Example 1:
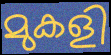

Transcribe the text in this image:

മുകളി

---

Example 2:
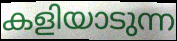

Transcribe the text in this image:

കളിയാടുന്ന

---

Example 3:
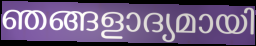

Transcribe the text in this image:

ഞങ്ങളാദ്യമായി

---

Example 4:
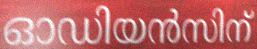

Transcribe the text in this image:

ഓഡിയൻസിന്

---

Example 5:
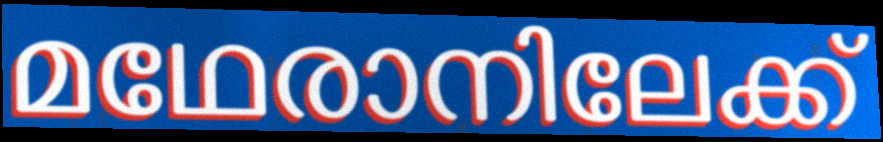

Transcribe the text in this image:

മഥേരാനിലേക്ക്